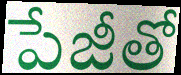
పేజీతో